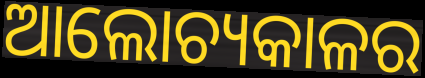
ଆଲୋଚ୍ୟକାଳର